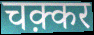
चक़्कर